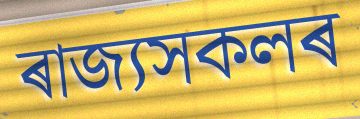
ৰাজ্যসকলৰ